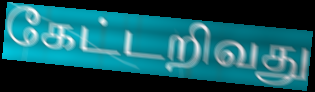
கேட்டறிவது